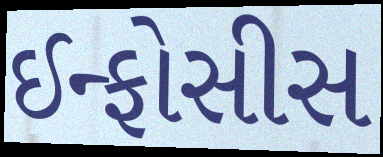
ઈન્ફોસીસ